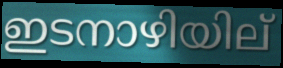
ഇടനാഴിയില്